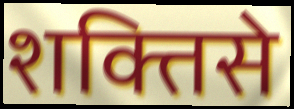
शक्तिसे